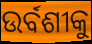
ଉର୍ବଶୀକୁ